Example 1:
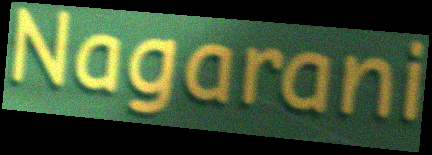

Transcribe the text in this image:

Nagarani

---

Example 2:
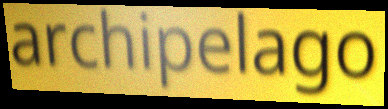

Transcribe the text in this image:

archipelago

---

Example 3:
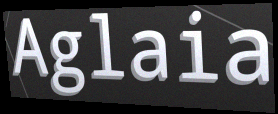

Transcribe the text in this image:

Aglaia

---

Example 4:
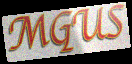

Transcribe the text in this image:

MGUS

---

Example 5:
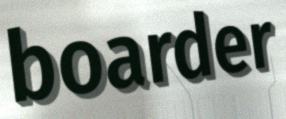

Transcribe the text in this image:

boarder